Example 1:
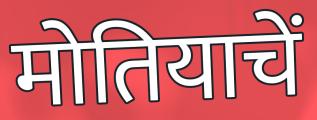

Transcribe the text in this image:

मोतियाचें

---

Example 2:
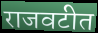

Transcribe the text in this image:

राजवटीत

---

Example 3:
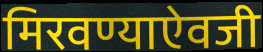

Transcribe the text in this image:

मिरवण्याऐवजी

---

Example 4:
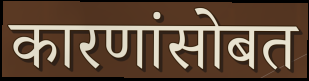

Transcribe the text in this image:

कारणांसोबत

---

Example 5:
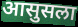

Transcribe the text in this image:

आसुसला